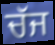
ਚੱਜ